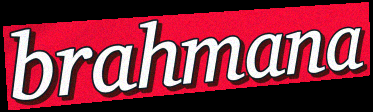
brahmana